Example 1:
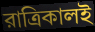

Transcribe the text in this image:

রাত্রিকালই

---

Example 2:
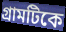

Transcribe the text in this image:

গ্রামটিকে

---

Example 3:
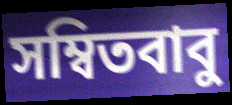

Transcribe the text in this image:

সম্বিতবাবু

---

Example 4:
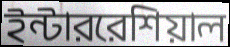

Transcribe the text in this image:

ইন্টাররেশিয়াল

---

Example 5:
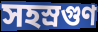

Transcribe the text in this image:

সহস্রগুণ